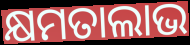
କ୍ଷମତାଲାଭ